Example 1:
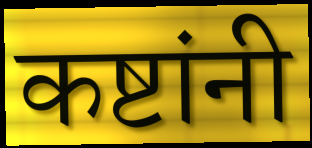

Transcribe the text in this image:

कष्टांनी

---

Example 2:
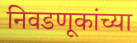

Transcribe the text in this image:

निवडणूकांच्या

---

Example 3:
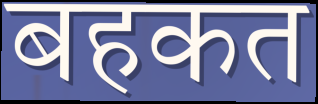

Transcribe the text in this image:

बहकत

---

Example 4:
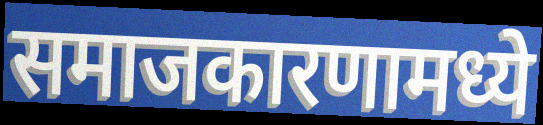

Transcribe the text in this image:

समाजकारणामध्ये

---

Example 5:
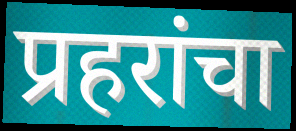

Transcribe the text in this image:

प्रहरांचा